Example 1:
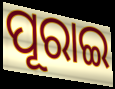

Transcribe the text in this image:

ପୂରାଇ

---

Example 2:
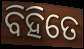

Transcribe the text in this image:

ବିହିତେ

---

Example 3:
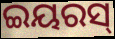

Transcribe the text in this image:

ଇୟରସ୍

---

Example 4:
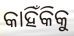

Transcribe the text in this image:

କାହିଁକିକୁ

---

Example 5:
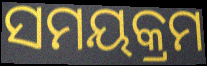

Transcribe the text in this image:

ସମୟକ୍ରମ